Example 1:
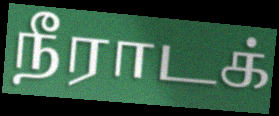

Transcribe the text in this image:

நீராடக்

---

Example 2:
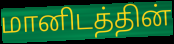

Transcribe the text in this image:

மானிடத்தின்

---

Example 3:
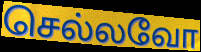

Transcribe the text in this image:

செல்லவோ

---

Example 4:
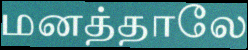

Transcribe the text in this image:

மனத்தாலே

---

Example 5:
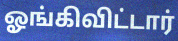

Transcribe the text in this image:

ஓங்கிவிட்டார்